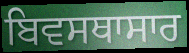
ਬਿਵਸਥਾਸਾਰ